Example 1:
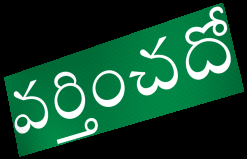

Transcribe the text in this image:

వర్తించదో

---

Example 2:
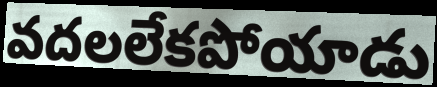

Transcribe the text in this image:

వదలలేకపోయాడు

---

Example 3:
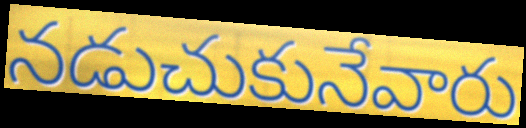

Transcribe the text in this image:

నడుచుకునేవారు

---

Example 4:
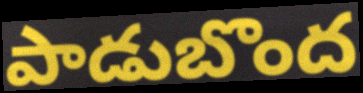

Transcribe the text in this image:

పాడుబొంద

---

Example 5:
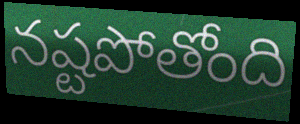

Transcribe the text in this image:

నష్టపోతోంది